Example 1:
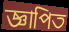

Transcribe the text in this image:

জ্ঞাপিত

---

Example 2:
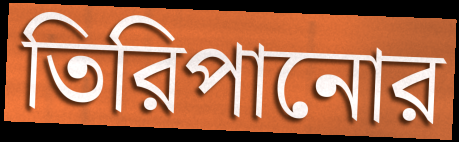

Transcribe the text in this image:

তিরিপানোর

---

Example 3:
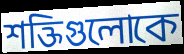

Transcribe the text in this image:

শক্তিগুলোকে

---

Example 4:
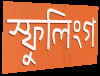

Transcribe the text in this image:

স্ফুলিংগ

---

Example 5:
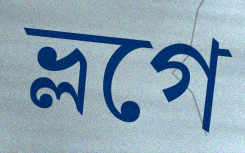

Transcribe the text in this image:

ভ্লগে